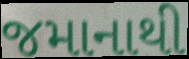
જમાનાથી